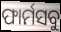
ଫାର୍ମସବୁ